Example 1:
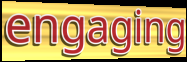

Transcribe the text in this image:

engaging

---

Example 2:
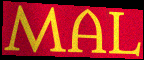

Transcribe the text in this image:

MAL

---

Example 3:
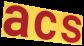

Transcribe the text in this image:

acs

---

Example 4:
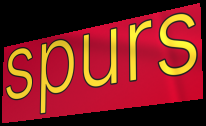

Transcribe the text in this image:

spurs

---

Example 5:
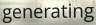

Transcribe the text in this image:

generating